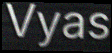
Vyas